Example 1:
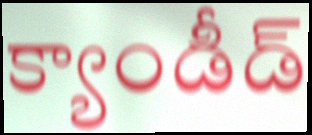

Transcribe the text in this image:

క్యాండీడ్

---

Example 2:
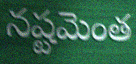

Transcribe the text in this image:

నష్టమెంత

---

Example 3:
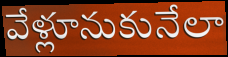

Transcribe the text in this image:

వేళ్లూనుకునేలా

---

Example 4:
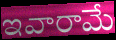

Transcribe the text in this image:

ఇవారామే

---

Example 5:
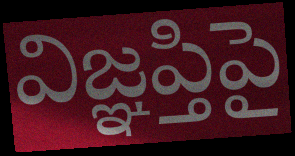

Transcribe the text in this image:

విజ్ఞప్తిపై